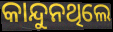
କାନ୍ଦୁନଥିଲେ